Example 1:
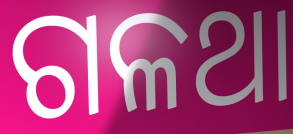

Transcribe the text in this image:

ଗଳଥା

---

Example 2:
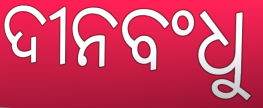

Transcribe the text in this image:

ଦୀନବଂଧୁ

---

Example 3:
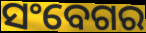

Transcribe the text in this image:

ସଂବେଗର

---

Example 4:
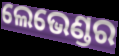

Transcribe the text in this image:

ଲେଭେଣ୍ଡର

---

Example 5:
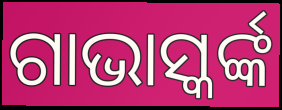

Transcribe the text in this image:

ଗାଭାସ୍କର୍ଙ୍କ